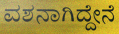
ವಶನಾಗಿದ್ದೇನೆ